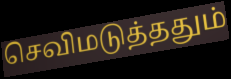
செவிமடுத்ததும்